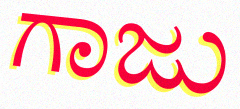
ಗಾಜು